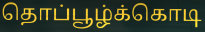
தொப்பூழ்க்கொடி